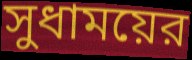
সুধাময়ের